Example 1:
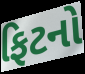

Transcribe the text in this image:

ફિટનો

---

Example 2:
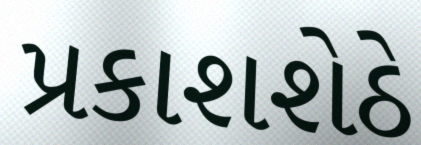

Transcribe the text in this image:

પ્રકાશશેઠે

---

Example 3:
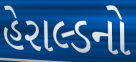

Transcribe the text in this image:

હેરાલ્ડનો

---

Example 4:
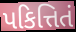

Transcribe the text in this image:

પકિત્તિતં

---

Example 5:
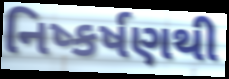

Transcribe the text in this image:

નિષ્કર્ષણથી